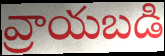
వ్రాయబడి